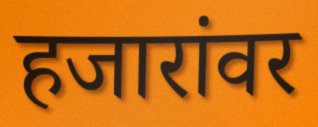
हजारांवर